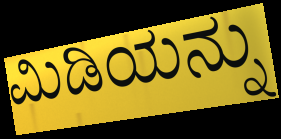
ಮಿಡಿಯನ್ನು